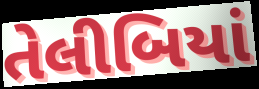
તેલીબિયાં